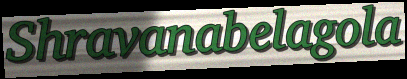
Shravanabelagola